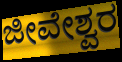
ಜೀವೇಶ್ವರ